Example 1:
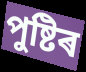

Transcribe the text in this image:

পুষ্টিৰ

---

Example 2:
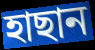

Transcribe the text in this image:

হাছান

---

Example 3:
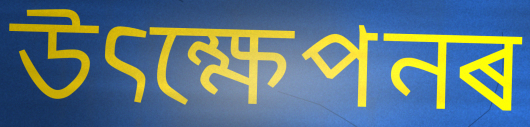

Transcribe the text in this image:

উৎক্ষেপনৰ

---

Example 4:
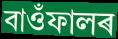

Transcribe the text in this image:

বাওঁফালৰ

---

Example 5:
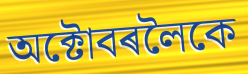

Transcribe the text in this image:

অক্টোবৰলৈকে